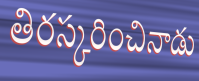
తిరస్కరించినాడు